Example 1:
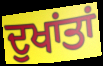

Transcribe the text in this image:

ਦੁਖਾਂਤਾਂ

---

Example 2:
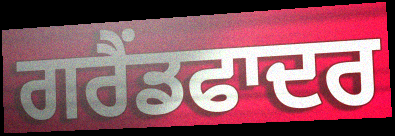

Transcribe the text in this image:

ਗਰੈਂਡਫਾਦਰ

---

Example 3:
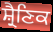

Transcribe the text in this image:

ਸ਼੍ਰੈਣਿਕ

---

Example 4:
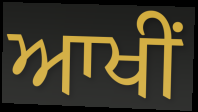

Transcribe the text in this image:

ਆਖੀਂ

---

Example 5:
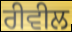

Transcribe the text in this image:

ਰੀਵੀਲ